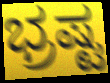
ಭ್ರಷ್ಟ